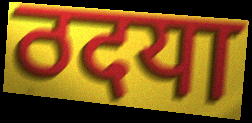
ठदया